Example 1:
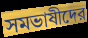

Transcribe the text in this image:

সমভাষীদের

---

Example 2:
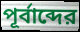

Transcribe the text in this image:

পূর্বাব্দের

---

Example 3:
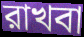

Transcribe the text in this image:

রাখবা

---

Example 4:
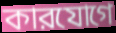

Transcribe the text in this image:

কারযোগে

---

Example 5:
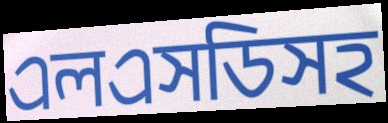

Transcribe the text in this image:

এলএসডিসহ